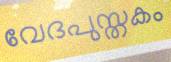
വേദപുസ്തകം